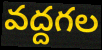
వద్దగల